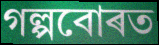
গল্পবোৰত